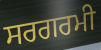
ਸਰਗਰਮੀ